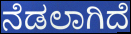
ನೆಡಲಾಗಿದೆ